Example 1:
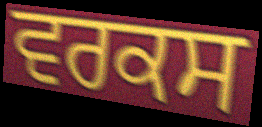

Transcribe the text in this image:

ਵਰਕਸ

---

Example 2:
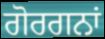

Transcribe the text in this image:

ਗੋਰਗਨਾਂ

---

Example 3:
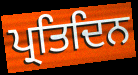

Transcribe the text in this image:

ਪ੍ਰਤਿਦਿਨ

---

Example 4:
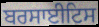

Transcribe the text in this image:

ਬਰਸਾਈਟਿਸ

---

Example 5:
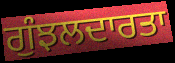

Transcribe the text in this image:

ਗੁੰਝਲਦਾਰਤਾ